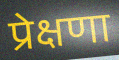
प्रेक्षणा